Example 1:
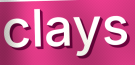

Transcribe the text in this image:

clays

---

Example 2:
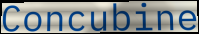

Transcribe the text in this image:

Concubine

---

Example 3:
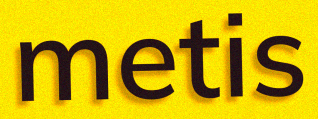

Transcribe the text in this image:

metis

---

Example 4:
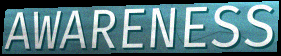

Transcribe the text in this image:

AWARENESS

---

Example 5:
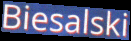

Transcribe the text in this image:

Biesalski